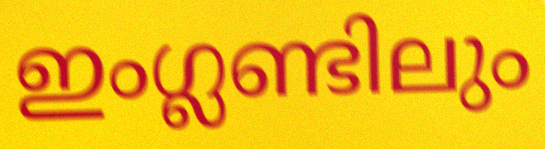
ഇംഗ്ലണ്ടിലും